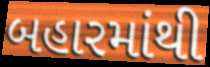
બહારમાંથી